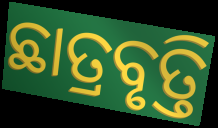
ଛାତ୍ରବୃତ୍ତି